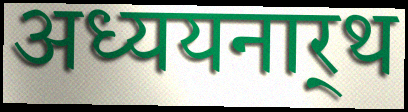
अध्ययनार्थ